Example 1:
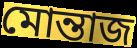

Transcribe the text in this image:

মোন্তাজ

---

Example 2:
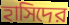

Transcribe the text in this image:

হাসিদের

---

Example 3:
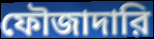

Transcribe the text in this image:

ফৌজাদারি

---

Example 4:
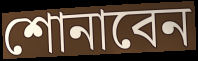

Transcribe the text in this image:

শোনাবেন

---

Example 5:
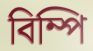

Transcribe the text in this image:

বিম্পি